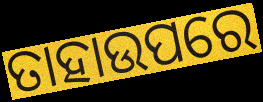
ତାହାଉପରେ